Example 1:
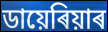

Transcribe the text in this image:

ডায়েৰিয়াৰ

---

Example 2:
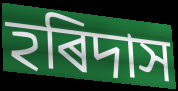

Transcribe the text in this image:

হৰিদাস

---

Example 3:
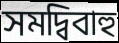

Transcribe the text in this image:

সমদ্বিবাহু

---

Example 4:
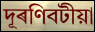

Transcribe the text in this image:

দূৰণিবটীয়া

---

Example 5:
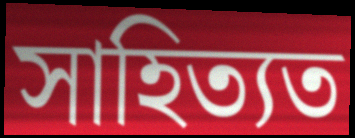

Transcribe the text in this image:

সাহিত্যত